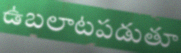
ఉబలాటపడుతూ